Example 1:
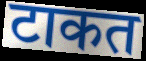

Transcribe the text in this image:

टाकत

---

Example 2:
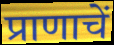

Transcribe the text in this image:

प्राणाचें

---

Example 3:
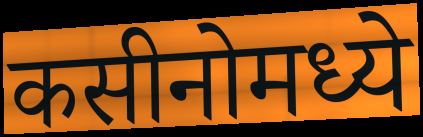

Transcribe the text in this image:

कसीनोमध्ये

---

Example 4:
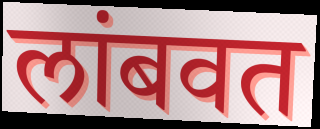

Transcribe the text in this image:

लांबवत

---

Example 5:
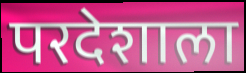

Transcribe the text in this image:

परदेशाला